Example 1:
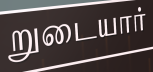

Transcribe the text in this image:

றுடையார்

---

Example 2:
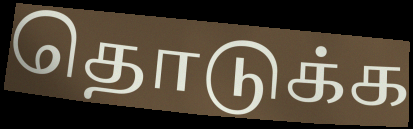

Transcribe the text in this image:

தொடுக்க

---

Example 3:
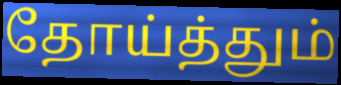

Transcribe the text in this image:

தோய்த்தும்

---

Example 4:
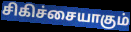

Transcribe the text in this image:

சிகிச்சையாகும்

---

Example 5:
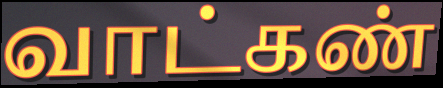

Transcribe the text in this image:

வாட்கண்